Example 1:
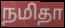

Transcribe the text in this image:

நமிதா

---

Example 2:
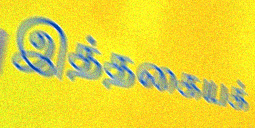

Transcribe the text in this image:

இத்தகையக்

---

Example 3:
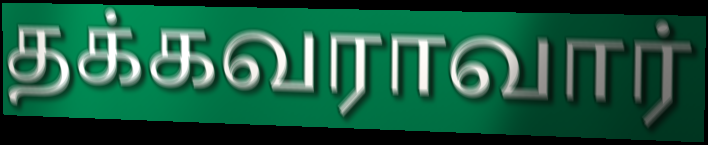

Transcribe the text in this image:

தக்கவராவார்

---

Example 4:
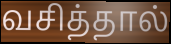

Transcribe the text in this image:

வசித்தால்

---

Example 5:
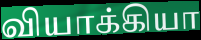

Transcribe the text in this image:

வியாக்கியா